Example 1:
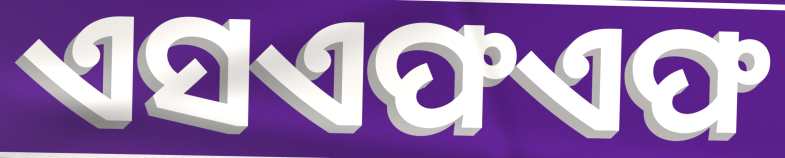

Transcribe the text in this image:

ଏସଏଫଏଫ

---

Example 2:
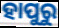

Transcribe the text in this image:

ହାପୁରୁ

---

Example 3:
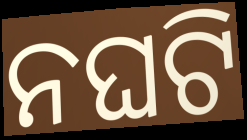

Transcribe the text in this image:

ନଘଟି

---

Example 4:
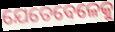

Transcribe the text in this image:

ଯେତେବେଳେକୁ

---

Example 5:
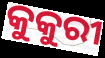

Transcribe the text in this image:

କୁକୁରୀ